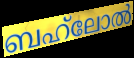
ബഹ്‌ലോൽ